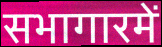
सभागारमें